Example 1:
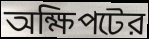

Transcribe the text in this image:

অক্ষিপটের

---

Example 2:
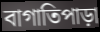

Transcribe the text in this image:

বাগাতিপাড়া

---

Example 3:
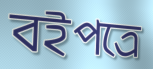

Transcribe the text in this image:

বইপত্রে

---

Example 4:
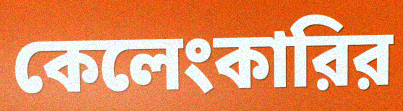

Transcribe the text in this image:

কেলেংকারির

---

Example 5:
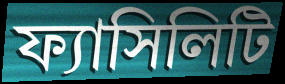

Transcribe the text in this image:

ফ্যাসিলিটি